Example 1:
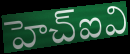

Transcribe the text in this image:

హెచ్ఐవి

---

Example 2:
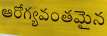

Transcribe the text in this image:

ఆరోగ్యవంతమైన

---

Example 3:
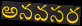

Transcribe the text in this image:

అనవసర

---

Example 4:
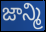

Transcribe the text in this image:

జాన్మి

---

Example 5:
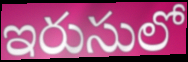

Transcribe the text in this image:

ఇరుసులో